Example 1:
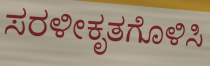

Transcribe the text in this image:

ಸರಳೀಕೃತಗೊಳಿಸಿ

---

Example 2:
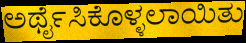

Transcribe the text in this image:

ಅರ್ಥೈಸಿಕೊಳ್ಳಲಾಯಿತು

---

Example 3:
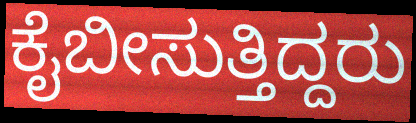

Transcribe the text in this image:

ಕೈಬೀಸುತ್ತಿದ್ದರು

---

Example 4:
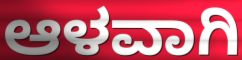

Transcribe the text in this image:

ಆಳವಾಗಿ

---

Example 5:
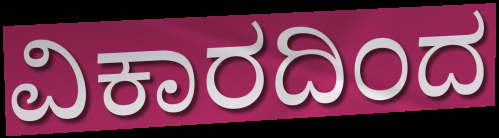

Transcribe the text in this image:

ವಿಕಾರದಿಂದ